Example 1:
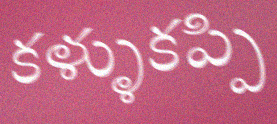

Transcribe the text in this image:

కళ్ళుకప్పి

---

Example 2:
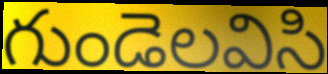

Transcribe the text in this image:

గుండెలవిసి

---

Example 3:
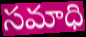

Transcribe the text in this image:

సమాధి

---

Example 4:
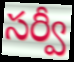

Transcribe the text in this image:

సర్వీ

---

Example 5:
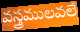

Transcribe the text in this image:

వస్త్రములవలే